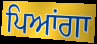
ਪਿਆਂਗਾ